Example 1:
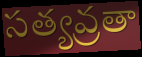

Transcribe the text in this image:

సత్యవ్రతా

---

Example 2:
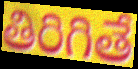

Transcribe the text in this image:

తిరిగితే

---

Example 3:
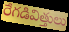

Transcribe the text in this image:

రేగడివిత్తులు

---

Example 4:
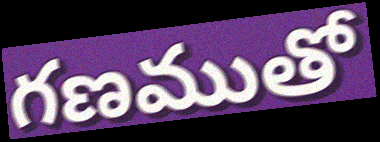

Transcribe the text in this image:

గణముతో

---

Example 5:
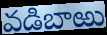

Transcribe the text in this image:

వడిబాఱు